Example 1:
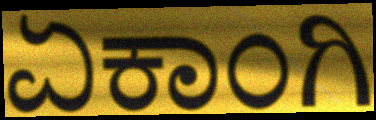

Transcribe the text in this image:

ಏಕಾಂಗಿ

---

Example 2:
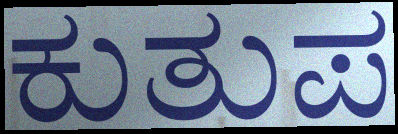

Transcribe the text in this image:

ಕುತುಪ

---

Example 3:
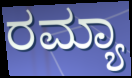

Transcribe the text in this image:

ರಮ್ಯಾ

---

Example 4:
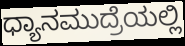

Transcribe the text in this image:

ಧ್ಯಾನಮುದ್ರೆಯಲ್ಲಿ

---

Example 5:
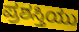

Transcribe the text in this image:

ಪ್ರಶಸ್ತಿಯು